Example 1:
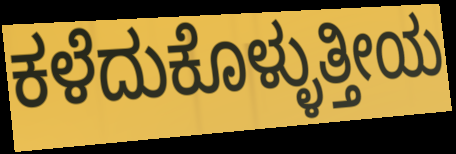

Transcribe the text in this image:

ಕಳೆದುಕೊಳ್ಳುತ್ತೀಯ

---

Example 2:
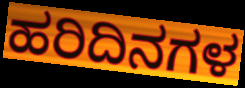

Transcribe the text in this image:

ಹರಿದಿನಗಳ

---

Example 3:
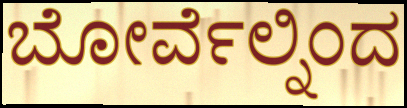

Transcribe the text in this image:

ಬೋರ್ವೆಲ್ನಿಂದ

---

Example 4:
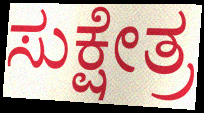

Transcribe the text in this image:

ಸುಕ್ಷೇತ್ರ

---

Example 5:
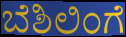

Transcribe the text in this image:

ಬೆಶಿಲಿಂಗೆ